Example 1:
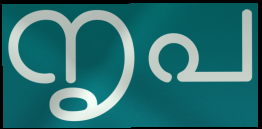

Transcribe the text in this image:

നൃപ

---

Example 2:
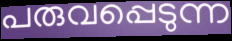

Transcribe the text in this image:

പരുവപ്പെടുന്ന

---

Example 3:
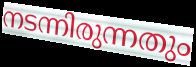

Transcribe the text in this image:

നടന്നിരുന്നതും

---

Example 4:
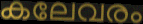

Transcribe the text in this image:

കലേവരം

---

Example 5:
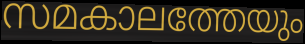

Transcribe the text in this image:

സമകാലത്തേയും